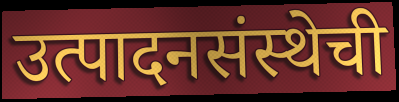
उत्पादनसंस्थेची